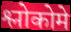
श्लोकोमे